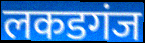
लकडगंज